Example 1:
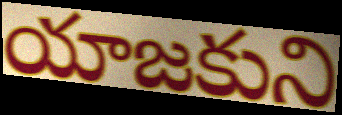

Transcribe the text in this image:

యాజకుని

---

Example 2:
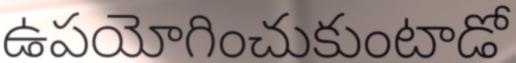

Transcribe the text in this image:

ఉపయోగించుకుంటాడో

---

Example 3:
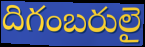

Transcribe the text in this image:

దిగంబరులై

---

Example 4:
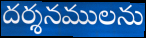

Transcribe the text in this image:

దర్శనములను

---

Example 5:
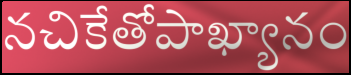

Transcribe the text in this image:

నచికేతోపాఖ్యానం